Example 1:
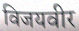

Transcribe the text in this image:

विजयवीर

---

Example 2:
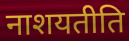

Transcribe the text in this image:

नाशयतीति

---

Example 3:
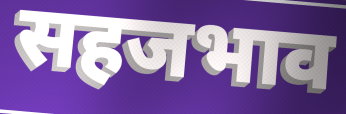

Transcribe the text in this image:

सहजभाव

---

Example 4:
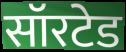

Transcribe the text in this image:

सॉरटेड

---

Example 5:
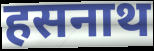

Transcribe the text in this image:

हसनाथ